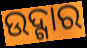
ଉଦ୍ଗାର